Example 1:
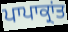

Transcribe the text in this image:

ਪਾਪਾਕ੍ਰਾਂਤ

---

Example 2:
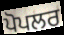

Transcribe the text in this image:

ਪੋਪਲਰ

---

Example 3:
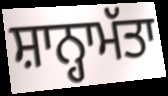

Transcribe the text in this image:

ਸ਼ਾਨ੍ਹਾਮੱਤਾ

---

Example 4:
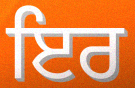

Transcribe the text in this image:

ਇਰ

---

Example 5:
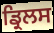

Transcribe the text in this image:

ਡ੍ਰਿਲਸ